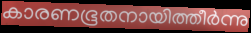
കാരണഭൂതനായിത്തീർന്നു